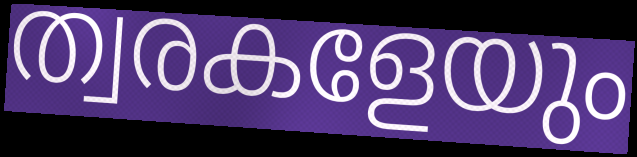
ത്വരകളേയും